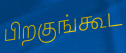
பிறகுங்கூட